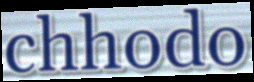
chhodo